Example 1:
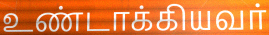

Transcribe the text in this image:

உண்டாக்கியவர்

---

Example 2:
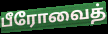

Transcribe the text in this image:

பீரோவைத்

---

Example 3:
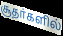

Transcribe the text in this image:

சூதர்களில்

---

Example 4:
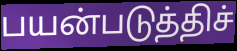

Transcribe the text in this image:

பயன்படுத்திச்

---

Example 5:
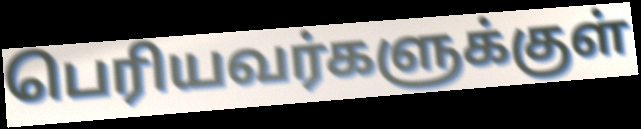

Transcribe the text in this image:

பெரியவர்களுக்குள்